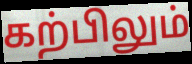
கற்பிலும்